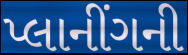
પ્લાનીંગની